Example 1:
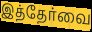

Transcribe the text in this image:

இத்தேர்வை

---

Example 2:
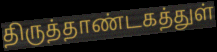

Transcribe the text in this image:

திருத்தாண்டகத்துள்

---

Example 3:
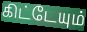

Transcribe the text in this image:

கிட்டேயும்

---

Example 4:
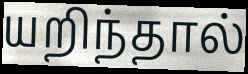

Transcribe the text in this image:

யறிந்தால்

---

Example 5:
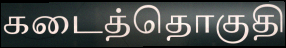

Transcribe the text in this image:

கடைத்தொகுதி